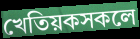
খেতিয়কসকলে